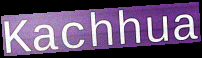
Kachhua